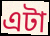
এটা